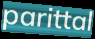
parittal